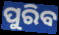
ପୁରିବ